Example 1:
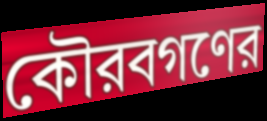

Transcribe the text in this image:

কৌরবগণের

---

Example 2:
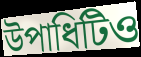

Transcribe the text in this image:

উপাধিটিও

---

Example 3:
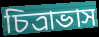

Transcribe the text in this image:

চিত্রাভাস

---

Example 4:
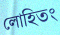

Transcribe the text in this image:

লোহিতং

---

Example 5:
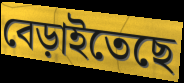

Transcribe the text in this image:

বেড়াইতেছে